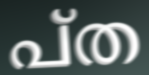
പ്ത